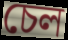
চেল